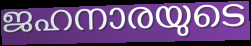
ജഹനാരയുടെ